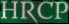
HRCP